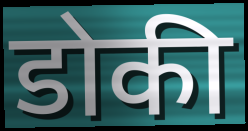
डोकी